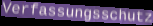
Verfassungsschutz